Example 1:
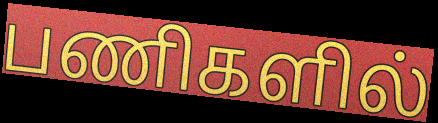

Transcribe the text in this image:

பணிகளில்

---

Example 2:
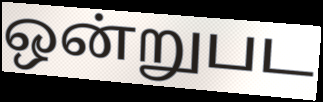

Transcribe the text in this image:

ஒன்றுபட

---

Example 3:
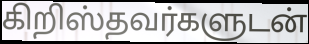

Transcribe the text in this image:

கிறிஸ்தவர்களுடன்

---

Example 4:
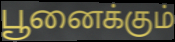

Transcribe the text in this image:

பூனைக்கும்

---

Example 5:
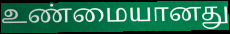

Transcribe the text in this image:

உண்மையானது